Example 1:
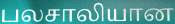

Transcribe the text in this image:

பலசாலியான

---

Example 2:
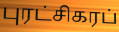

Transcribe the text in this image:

புரட்சிகரப்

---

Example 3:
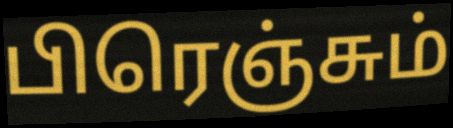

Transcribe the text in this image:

பிரெஞ்சும்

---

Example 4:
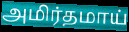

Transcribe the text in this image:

அமிர்தமாய்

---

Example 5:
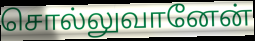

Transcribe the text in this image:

சொல்லுவானேன்